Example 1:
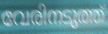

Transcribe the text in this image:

വേരിനടുത്ത്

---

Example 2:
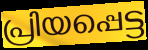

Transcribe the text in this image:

പ്രിയപ്പെട്ട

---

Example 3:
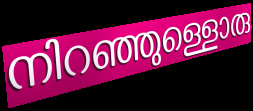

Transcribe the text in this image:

നിറഞ്ഞുള്ളൊരു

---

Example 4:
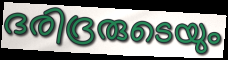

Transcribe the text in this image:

ദരിദ്രരുടെയും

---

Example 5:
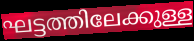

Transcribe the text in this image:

ഘട്ടത്തിലേക്കുള്ള